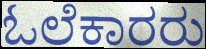
ಓಲೆಕಾರರು